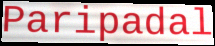
Paripadal